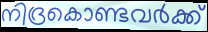
നിദ്രകൊണ്ടവർക്ക്